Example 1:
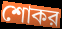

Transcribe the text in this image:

শোকর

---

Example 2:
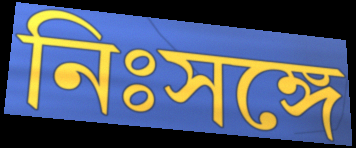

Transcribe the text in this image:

নিঃসঙ্গে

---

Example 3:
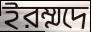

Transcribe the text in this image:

ইরম্মদে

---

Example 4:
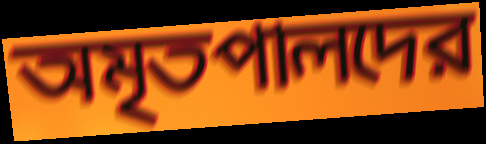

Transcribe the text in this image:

অমৃতপালদের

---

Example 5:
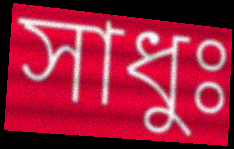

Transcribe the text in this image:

সাধুঃ